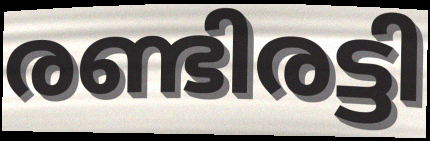
രണ്ടിരട്ടി